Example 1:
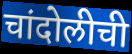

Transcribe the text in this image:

चांदोलीची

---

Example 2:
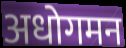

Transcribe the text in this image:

अधोगमन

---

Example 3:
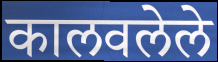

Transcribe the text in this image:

कालवलेले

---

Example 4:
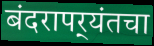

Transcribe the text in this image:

बंदरापर्यंतचा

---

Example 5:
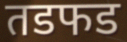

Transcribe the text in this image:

तडफड